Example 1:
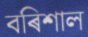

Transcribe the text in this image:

বৰিশাল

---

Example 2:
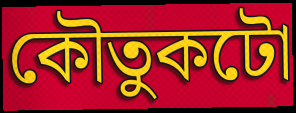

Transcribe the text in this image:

কৌতুকটো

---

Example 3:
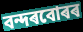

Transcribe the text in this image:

বন্দৰবোৰৰ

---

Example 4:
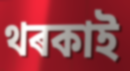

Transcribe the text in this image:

থৰকাই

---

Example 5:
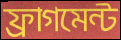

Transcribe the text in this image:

ফ্ৰাগমেন্ট